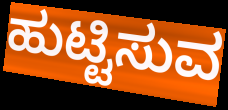
ಹುಟ್ಟಿಸುವ